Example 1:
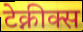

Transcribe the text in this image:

टेक्नीक्स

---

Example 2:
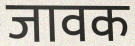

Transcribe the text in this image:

जावक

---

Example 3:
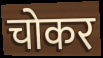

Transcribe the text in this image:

चोकर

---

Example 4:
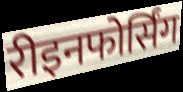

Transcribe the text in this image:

रीइनफोर्सिंग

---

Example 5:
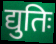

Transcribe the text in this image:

द्युतिः